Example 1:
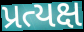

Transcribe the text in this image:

પ્રત્યક્ષ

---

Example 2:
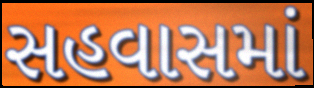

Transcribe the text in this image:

સહવાસમાં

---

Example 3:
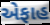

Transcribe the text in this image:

એફાહ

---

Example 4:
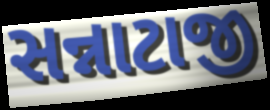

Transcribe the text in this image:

સન્નાટાજી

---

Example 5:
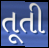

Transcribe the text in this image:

તૂતી